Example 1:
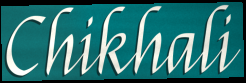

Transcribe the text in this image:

Chikhali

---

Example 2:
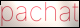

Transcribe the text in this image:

pachat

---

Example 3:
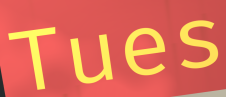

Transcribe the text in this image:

Tues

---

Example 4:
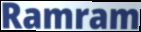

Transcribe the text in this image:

Ramram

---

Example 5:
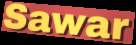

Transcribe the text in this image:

Sawar